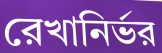
রেখানির্ভর